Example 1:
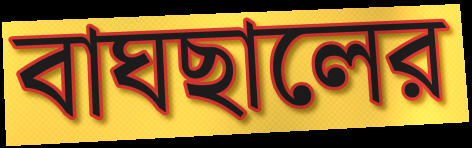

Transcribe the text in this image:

বাঘছালের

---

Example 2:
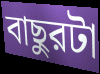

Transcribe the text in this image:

বাছুরটা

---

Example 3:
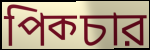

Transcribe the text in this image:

পিক্চার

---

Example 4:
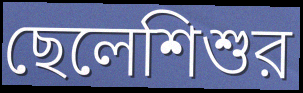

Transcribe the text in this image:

ছেলেশিশুর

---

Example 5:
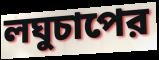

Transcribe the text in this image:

লঘুচাপের